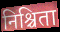
निश्चिता